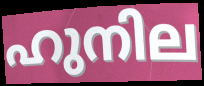
ഹുനില